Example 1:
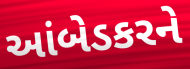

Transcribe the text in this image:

આંબેડકરને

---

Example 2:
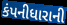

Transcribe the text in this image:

કંપનીધારાની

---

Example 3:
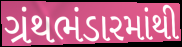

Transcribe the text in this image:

ગ્રંથભંડારમાંથી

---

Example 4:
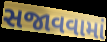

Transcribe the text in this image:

સજાવવામાં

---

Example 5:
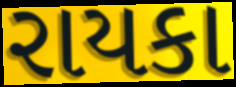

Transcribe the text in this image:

રાયકા